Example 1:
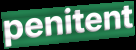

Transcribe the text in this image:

penitent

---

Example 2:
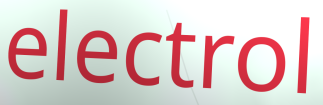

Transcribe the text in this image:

electrol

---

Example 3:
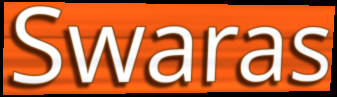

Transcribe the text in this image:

Swaras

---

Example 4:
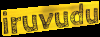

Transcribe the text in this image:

iruvudu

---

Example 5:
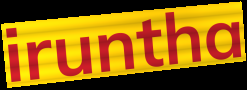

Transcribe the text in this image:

iruntha